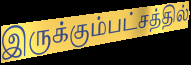
இருக்கும்பட்சத்தில்